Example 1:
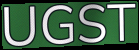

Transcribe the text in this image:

UGST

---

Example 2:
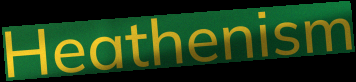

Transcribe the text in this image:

Heathenism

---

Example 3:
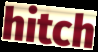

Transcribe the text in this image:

hitch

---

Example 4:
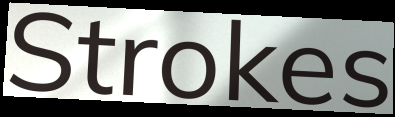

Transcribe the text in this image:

Strokes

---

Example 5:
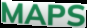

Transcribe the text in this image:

MAPS